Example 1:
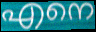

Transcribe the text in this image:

എനെ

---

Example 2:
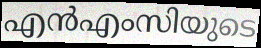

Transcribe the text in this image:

എൻഎംസിയുടെ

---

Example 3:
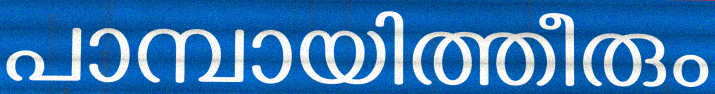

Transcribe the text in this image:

പാമ്പായിത്തീരും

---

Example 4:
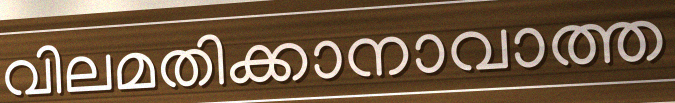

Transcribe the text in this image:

വിലമതിക്കാനാവാത്ത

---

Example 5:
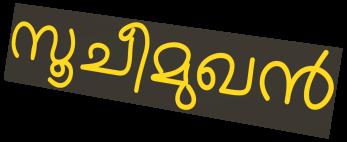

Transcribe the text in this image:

സൂചീമുഖൻ